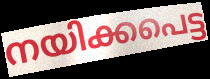
നയിക്കപെട്ട